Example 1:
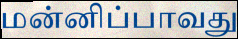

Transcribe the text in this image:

மன்னிப்பாவது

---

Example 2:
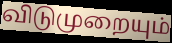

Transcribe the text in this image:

விடுமுறையும்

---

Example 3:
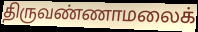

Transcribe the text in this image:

திருவண்ணாமலைக்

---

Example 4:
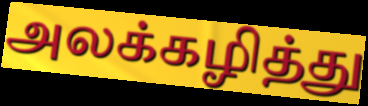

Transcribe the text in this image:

அலக்கழித்து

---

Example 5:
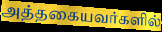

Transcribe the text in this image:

அத்தகையவர்களில்